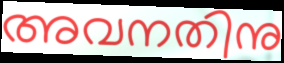
അവനതിനു